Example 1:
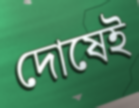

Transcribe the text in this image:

দোষেই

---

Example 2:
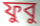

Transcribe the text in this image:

ফুবু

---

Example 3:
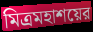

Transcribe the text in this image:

মিত্রমহাশয়ের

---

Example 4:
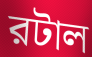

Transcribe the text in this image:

রটাল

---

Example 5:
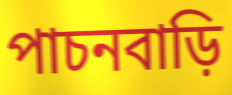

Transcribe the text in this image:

পাচনবাড়ি